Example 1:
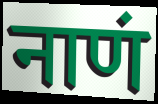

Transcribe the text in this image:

नाणं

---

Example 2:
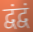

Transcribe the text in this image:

द्वंद्वं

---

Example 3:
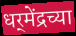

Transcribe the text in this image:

धर्मेंद्रच्या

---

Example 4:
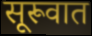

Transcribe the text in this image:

सूरूवात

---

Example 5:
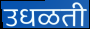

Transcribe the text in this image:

उधळती